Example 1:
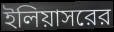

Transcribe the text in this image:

ইলিয়াসরের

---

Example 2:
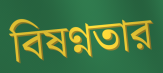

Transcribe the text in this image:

বিষণ্নতার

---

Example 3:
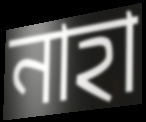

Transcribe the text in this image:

নাহা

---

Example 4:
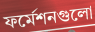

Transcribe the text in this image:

ফর্মেশনগুলো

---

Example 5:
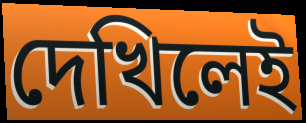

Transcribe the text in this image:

দেখিলেই